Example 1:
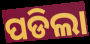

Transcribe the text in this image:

ପଡିଲା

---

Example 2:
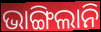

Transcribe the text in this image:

ଭାଙ୍ଗିଲାନି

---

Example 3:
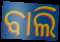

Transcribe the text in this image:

ବାଲି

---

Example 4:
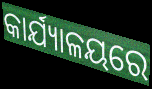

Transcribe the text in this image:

କାର୍ଯ୍ୟାଳୟରେ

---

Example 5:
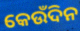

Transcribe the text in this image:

କେଉଁଦିନ